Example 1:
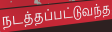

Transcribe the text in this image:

நடத்தப்பட்டுவந்த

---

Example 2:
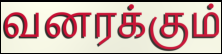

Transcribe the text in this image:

வனரக்கும்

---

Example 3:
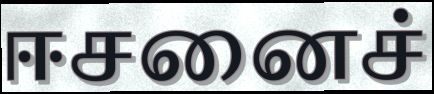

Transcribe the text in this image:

ஈசனைச்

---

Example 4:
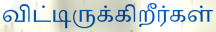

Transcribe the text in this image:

விட்டிருக்கிறீர்கள்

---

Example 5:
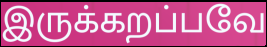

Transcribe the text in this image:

இருக்கறப்பவே